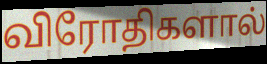
விரோதிகளால்